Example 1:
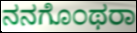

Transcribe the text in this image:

ನನಗೊಂಥರಾ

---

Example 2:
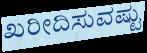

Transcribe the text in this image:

ಖರೀದಿಸುವಷ್ಟು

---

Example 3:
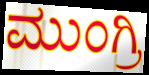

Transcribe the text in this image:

ಮುಂಗ್ರಿ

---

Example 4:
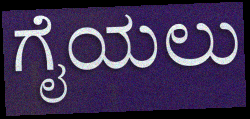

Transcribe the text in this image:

ಗೈಯಲು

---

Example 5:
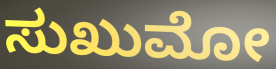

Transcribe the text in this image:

ಸುಖುಮೋ